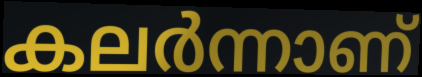
കലർന്നാണ്